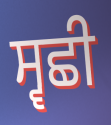
ਸ੍ਵਛੀ